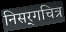
निसर्गचित्र